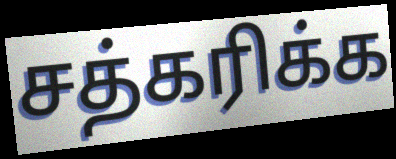
சத்கரிக்க